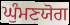
ਘੁੰਮਣਯੋਗ